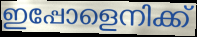
ഇപ്പോളെനിക്ക്